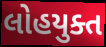
લોહયુક્ત